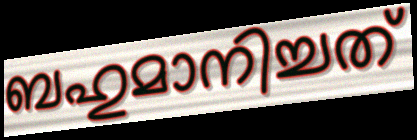
ബഹുമാനിച്ചത്